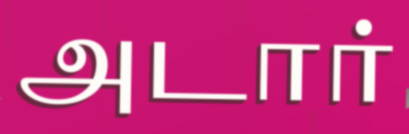
அடார்